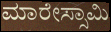
ಮಾರೇಸ್ಸಾಮಿ